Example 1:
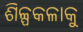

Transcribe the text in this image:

ଶିଳ୍ପକଳାକୁ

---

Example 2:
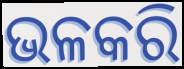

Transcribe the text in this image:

ଭଳକରି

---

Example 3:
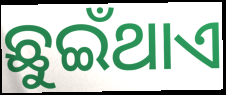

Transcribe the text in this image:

ଛୁଇଁଥାଏ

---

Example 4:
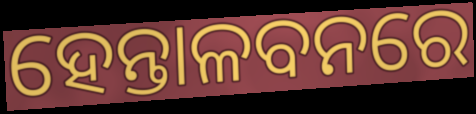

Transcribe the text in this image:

ହେନ୍ତାଳବନରେ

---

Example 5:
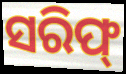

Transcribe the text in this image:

ସରିଫ୍